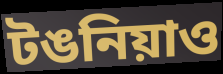
টঙনিয়াও